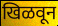
खिळवून